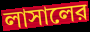
লাসালের